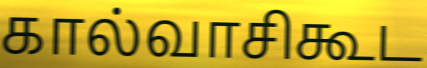
கால்வாசிகூட